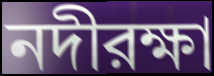
নদীরক্ষা